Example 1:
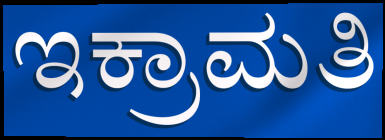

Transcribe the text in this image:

ಇಕ್ರಾಮತಿ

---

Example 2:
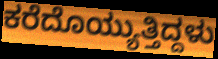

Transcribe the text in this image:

ಕರೆದೊಯ್ಯುತ್ತಿದ್ದಳು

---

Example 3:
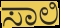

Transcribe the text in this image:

ಸಾಲಿ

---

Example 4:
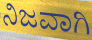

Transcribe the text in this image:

ನಿಜವಾಗಿ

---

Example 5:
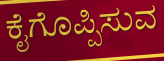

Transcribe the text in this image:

ಕೈಗೊಪ್ಪಿಸುವ